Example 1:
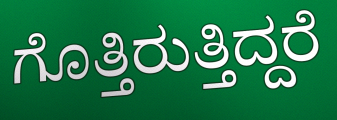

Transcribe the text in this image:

ಗೊತ್ತಿರುತ್ತಿದ್ದರೆ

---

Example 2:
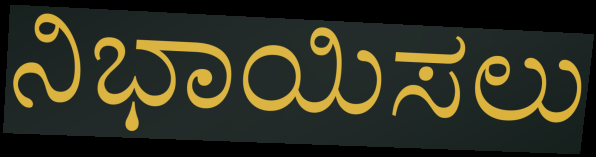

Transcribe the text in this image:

ನಿಭಾಯಿಸಲು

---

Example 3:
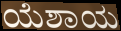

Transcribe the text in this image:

ಯೆಶಾಯ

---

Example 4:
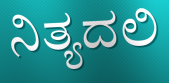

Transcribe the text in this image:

ನಿತ್ಯದಲಿ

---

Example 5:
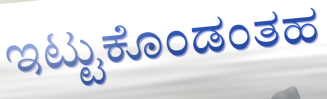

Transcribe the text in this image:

ಇಟ್ಟುಕೊಂಡಂತಹ